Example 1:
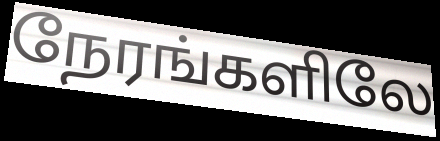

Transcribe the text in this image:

நேரங்களிலே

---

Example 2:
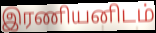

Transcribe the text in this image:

இரணியனிடம்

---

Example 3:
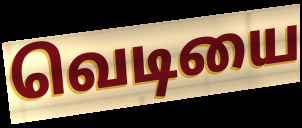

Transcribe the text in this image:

வெடியை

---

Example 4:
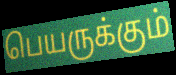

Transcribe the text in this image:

பெயருக்கும்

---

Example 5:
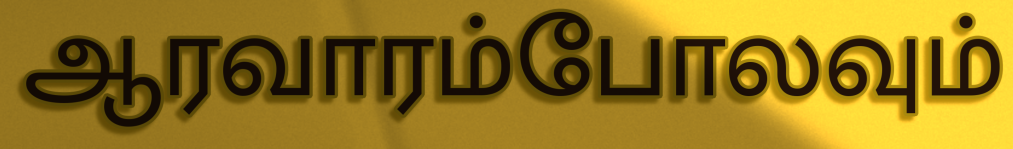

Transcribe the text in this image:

ஆரவாரம்போலவும்